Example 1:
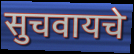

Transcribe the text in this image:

सुचवायचे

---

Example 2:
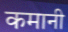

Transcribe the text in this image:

कमानी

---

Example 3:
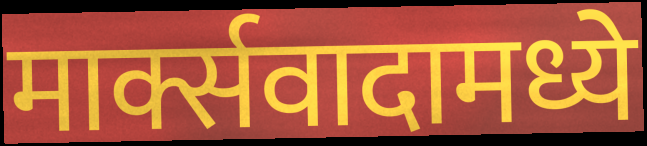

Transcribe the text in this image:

मार्क्सवादामध्ये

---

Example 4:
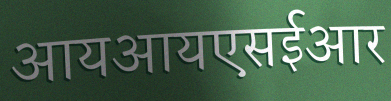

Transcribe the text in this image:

आयआयएसईआर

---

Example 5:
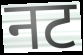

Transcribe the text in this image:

नट